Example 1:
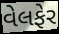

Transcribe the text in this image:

વેલફેર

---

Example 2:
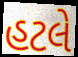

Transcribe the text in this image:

હટલે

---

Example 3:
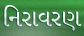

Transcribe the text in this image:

નિરાવરણ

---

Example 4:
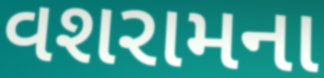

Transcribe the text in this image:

વશરામના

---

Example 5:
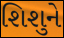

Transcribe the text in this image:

શિશુને